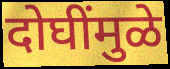
दोघींमुळे